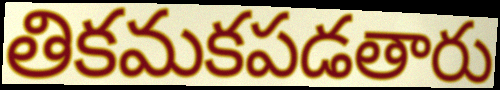
తికమకపడతారు